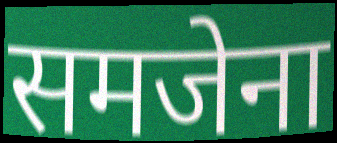
समजेना